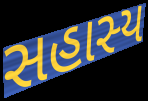
સહાસ્ય